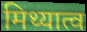
मिथ्यात्व